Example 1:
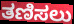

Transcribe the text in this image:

ತಣಿಸಲು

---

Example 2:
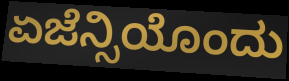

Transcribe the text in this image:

ಏಜೆನ್ಸಿಯೊಂದು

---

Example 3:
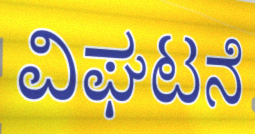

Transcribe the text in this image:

ವಿಘಟನೆ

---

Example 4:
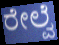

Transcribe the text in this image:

ರೇಲ್ವೆ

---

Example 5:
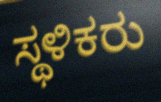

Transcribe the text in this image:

ಸ್ಥಳಿಕರು